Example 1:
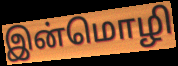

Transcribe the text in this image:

இன்மொழி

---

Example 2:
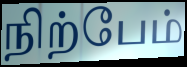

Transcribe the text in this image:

நிற்பேம்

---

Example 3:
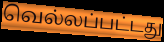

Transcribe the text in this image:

வெல்லப்பட்டது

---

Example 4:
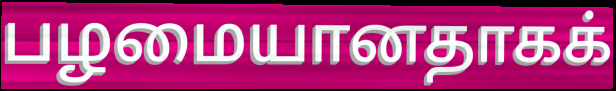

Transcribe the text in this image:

பழமையானதாகக்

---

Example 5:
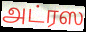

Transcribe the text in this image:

அட்ரஸ